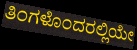
ತಿಂಗಳೊಂದರಲ್ಲಿಯೇ